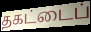
தகட்டைப்